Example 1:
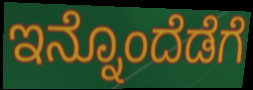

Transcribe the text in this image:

ಇನ್ನೊಂದೆಡೆಗೆ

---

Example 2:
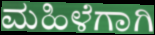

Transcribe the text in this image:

ಮಹಿಳೆಗಾಗಿ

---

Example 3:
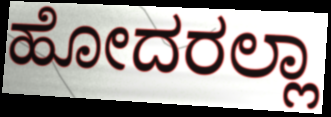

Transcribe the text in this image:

ಹೋದರಲ್ಲಾ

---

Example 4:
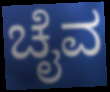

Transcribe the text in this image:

ಚೈವ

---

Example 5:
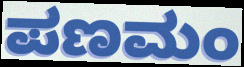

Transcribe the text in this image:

ಪಣಮಂ